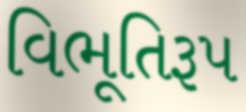
વિભૂતિરૂપ